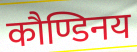
कौण्डिनय